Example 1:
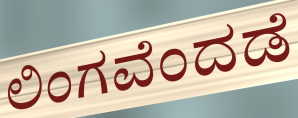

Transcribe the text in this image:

ಲಿಂಗವೆಂದಡೆ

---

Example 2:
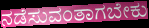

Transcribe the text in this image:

ನಡೆಸುವಂತಾಗಬೇಕು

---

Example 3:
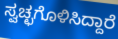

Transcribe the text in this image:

ಸ್ವಚ್ಛಗೊಳಿಸಿದ್ದಾರೆ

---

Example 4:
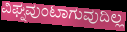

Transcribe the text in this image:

ವಿಘ್ನವುಂಟಾಗುವುದಿಲ್ಲ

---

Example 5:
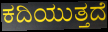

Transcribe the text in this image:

ಕದಿಯುತ್ತದೆ